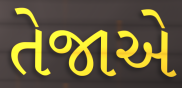
તેજાએ